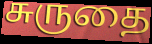
சுருதை